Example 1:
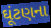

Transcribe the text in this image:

ઘૂંટણના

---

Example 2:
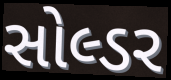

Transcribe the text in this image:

સોલ્ડર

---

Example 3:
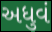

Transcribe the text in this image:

અધુવં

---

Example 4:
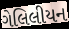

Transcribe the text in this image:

ગેલિલીયન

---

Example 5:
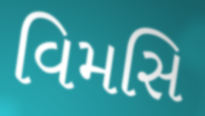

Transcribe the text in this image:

વિમસિ